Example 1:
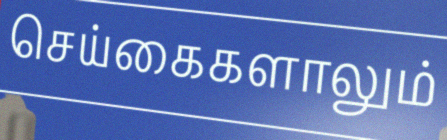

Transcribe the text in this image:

செய்கைகளாலும்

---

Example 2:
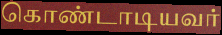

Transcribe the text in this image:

கொண்டாடியவர்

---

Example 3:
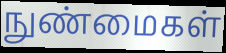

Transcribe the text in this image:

நுண்மைகள்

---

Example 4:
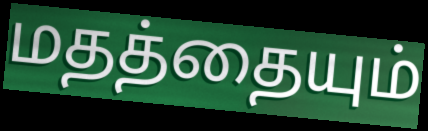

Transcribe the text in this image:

மதத்தையும்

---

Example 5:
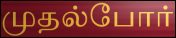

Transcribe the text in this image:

முதல்போர்